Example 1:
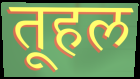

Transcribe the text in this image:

तूहल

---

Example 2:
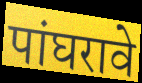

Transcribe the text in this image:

पांघरावे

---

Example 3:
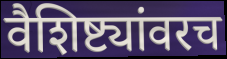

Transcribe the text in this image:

वैशिष्ट्यांवरच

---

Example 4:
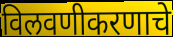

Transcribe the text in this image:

विलवणीकरणाचे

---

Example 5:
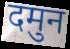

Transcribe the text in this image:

दमुन